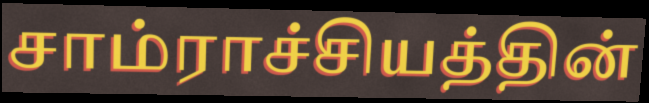
சாம்ராச்சியத்தின்